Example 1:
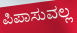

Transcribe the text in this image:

ಪಿಪಾಸುವಲ್ಲ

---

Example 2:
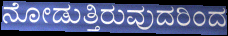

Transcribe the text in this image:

ನೋಡುತ್ತಿರುವುದರಿಂದ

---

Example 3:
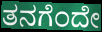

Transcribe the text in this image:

ತನಗೆಂದೇ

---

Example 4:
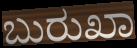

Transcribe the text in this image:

ಬುರುಖಾ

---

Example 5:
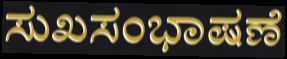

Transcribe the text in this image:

ಸುಖಸಂಭಾಷಣೆ